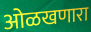
ओळखणारा